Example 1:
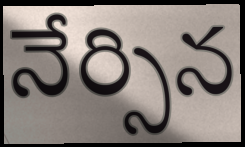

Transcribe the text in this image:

నేర్సిన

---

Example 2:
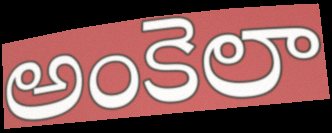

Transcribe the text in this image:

అంకెలా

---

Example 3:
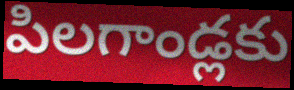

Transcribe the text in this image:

పిలగాండ్లకు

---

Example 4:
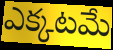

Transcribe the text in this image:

ఎక్కటమే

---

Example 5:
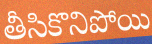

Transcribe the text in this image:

తీసికొనిపోయి